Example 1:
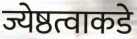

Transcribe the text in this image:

ज्येष्ठत्वाकडे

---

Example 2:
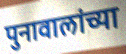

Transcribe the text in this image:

पुनावालांच्या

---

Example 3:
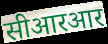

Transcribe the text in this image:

सीआरआर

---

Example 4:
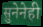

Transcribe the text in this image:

सुनेनेही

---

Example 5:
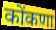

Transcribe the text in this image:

कोंकणा